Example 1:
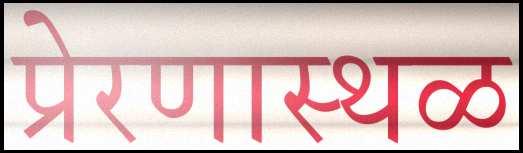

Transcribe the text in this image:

प्रेरणास्थळ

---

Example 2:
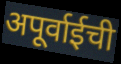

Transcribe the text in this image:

अपूर्वाईची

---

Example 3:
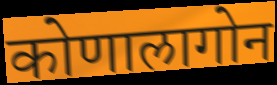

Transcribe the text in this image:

कोणालागोन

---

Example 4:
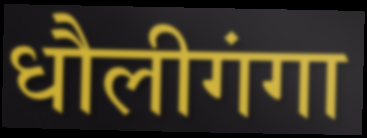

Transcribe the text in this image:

धौलीगंगा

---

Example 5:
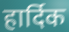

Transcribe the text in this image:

हार्दिक